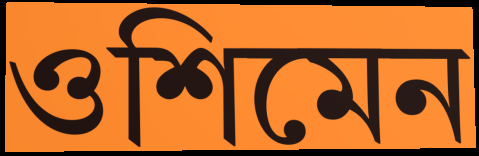
ওশিমেন